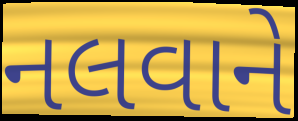
નલવાને